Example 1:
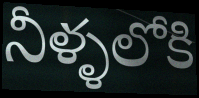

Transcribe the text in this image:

నీళ్ళలోకి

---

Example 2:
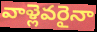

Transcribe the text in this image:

వాళ్లెవరైనా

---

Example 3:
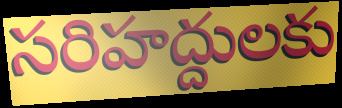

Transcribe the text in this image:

సరిహద్దులకు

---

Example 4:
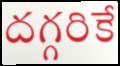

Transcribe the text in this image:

దగ్గరికే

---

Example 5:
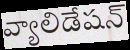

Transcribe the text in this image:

వ్యాలిడేషన్